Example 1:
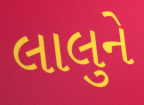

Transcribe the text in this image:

લાલુને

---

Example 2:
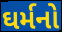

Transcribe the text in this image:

ઘર્મનો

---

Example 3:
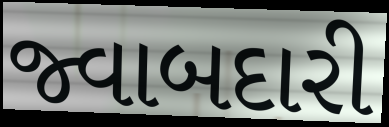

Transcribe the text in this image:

જ્વાબદારી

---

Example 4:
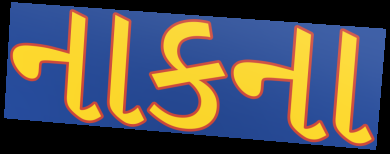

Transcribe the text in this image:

નાકના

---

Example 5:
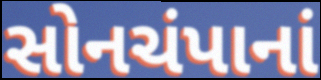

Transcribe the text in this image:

સોનચંપાનાં